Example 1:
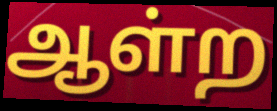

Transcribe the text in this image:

ஆள்ற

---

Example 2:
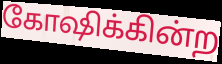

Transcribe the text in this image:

கோஷிக்கின்ற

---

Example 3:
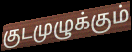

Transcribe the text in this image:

குடமுழுக்கும்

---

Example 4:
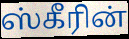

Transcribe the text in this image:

ஸ்கீரின்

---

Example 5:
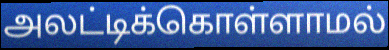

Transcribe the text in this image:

அலட்டிக்கொள்ளாமல்